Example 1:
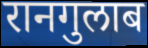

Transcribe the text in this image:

रानगुलाब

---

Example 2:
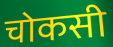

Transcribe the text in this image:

चोकसी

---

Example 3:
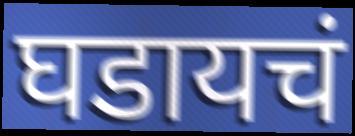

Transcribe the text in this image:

घडायचं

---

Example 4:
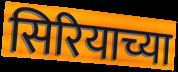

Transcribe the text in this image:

सिरियाच्या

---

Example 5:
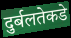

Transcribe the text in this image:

दुर्बलतेकडे